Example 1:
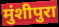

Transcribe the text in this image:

मुंशीपुरा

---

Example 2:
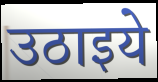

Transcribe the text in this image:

उठाइये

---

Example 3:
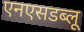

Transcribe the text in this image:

एनएसडब्लू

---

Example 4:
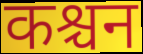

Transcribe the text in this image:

कश्चन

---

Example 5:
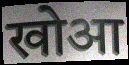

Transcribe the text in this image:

खोआ